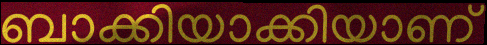
ബാക്കിയാക്കിയാണ്